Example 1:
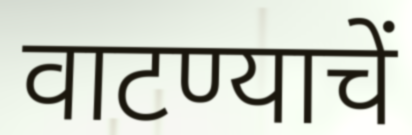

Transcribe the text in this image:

वाटण्याचें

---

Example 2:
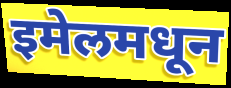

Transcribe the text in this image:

इमेलमधून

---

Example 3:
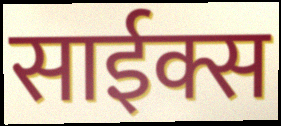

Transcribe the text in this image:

साईक्स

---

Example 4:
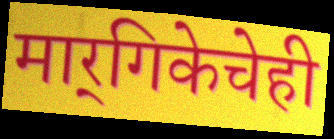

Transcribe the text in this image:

मार्गिकेचेही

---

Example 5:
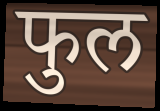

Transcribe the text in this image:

फुल